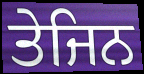
ਤੇਜਿਨ